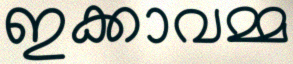
ഇക്കാവമ്മ